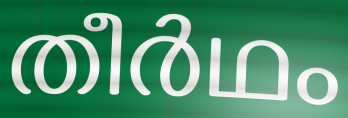
തീർഥം